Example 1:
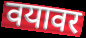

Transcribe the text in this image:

वयावर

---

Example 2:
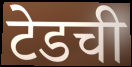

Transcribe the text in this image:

टेडची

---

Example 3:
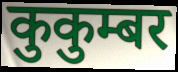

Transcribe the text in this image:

कुकुम्बर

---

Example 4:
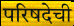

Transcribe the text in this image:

परिषदेची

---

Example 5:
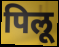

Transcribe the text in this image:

पिलू